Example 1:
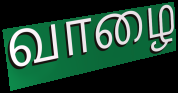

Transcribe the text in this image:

வாழை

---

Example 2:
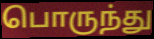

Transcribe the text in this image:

பொருந்து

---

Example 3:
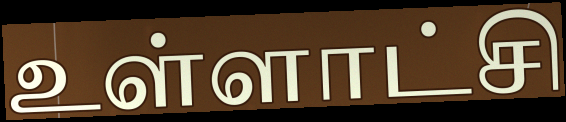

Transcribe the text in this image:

உள்ளாட்சி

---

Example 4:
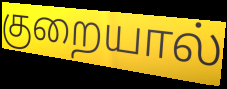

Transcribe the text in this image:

குறையால்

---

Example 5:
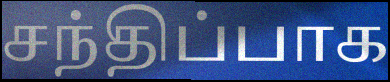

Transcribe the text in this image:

சந்திப்பாக